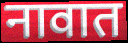
नावात